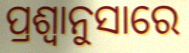
ପ୍ରଶ୍ବାନୁସାରେ